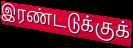
இரண்டடுக்குக்